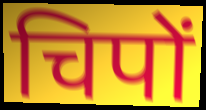
चिपों